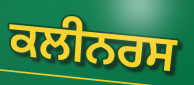
ਕਲੀਨਰਸ